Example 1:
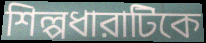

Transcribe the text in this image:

শিল্পধারাটিকে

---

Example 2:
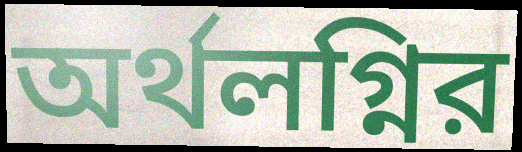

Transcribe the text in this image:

অর্থলগ্নির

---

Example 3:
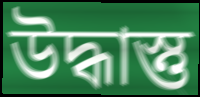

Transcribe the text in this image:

উদ্ধাস্তু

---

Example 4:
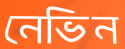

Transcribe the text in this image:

নেভিন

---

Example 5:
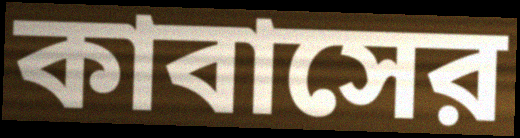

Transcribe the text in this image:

কাবাসের